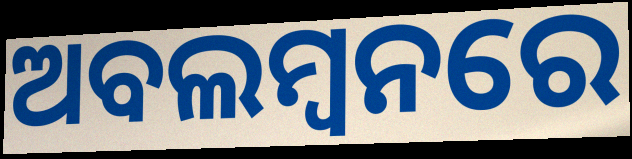
ଅବଲମ୍ବନରେ